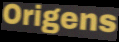
Origens